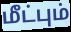
மீட்பும்